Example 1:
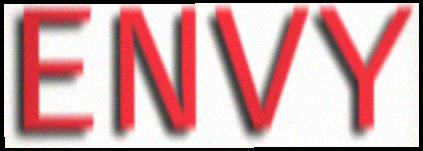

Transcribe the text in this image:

ENVY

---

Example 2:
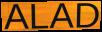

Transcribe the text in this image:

ALAD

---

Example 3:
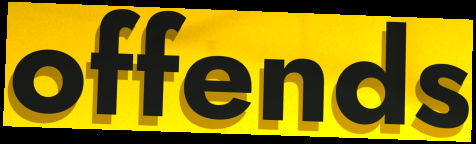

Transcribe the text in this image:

offends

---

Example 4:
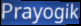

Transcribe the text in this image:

Prayogik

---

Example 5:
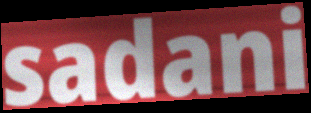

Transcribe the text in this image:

sadani